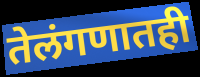
तेलंगणातही